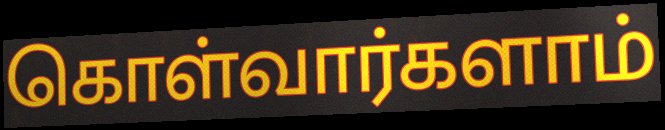
கொள்வார்களாம்